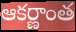
ఆకర్ణాంత